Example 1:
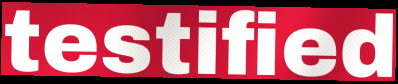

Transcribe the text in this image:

testified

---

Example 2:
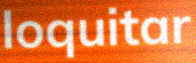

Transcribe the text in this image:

loquitar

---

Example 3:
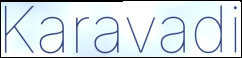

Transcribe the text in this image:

Karavadi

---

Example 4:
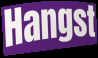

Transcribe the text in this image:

Hangst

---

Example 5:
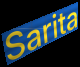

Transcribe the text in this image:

Sarita